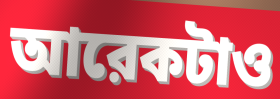
আরেকটাও